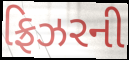
ફ્રિઝરની